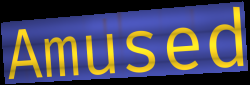
Amused